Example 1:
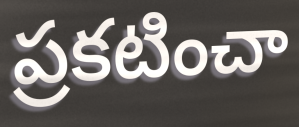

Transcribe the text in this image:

ప్రకటించా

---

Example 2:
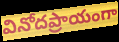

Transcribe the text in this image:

వినోదప్రాయంగా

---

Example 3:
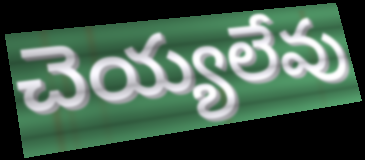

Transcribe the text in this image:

చెయ్యలేవు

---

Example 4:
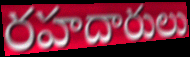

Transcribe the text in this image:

రహదారులు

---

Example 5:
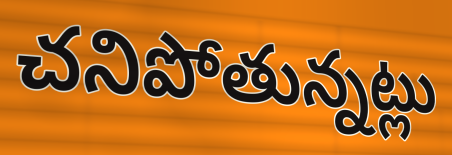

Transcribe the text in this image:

చనిపోతున్నట్లు